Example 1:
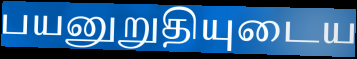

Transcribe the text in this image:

பயனுறுதியுடைய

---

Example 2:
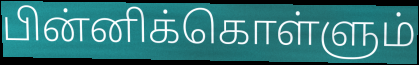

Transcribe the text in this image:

பின்னிக்கொள்ளும்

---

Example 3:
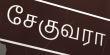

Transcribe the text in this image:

சேகுவரா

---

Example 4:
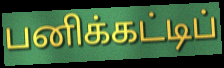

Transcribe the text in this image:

பனிக்கட்டிப்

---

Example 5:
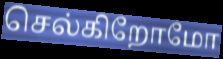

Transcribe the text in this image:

செல்கிறோமோ